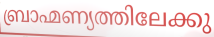
ബ്രാഹ്മണ്യത്തിലേക്കു